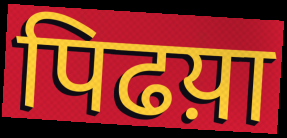
पिढय़ा